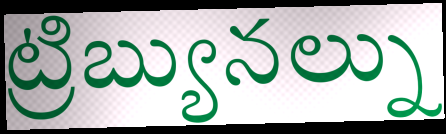
ట్రిబ్యునల్ను